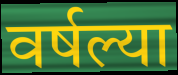
वर्षल्या